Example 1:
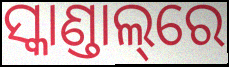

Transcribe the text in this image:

ସ୍କାଣ୍ଡାଲ୍‌ରେ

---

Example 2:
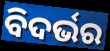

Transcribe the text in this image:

ବିଦର୍ଭର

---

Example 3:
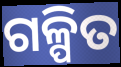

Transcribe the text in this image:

ଗଳ୍ପିତ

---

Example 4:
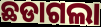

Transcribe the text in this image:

ଛଡାଗଲା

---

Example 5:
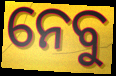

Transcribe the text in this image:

ନେବୁ